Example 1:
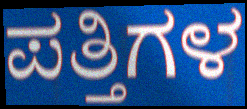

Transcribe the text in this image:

ಪತ್ತಿಗಳ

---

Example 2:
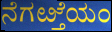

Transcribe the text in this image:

ನೆಗೞ್ತೆಯಂ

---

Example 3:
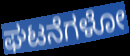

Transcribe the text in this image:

ಘಟನೆಗಳೋ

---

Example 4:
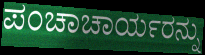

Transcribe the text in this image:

ಪಂಚಾಚಾರ್ಯರನ್ನು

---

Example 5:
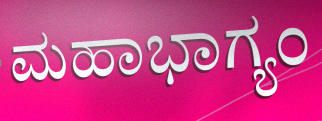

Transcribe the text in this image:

ಮಹಾಭಾಗ್ಯಂ